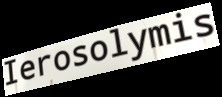
Ierosolymis